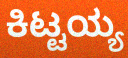
ಕಿಟ್ಟಯ್ಯ